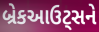
બ્રેકઆઉટ્સને